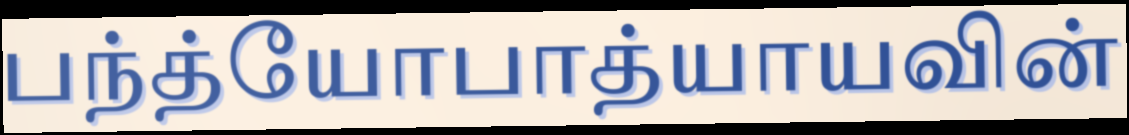
பந்த்யோபாத்யாயவின்